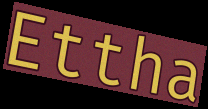
Ettha